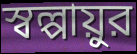
স্বল্পায়ুর